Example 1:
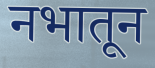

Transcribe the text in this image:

नभातून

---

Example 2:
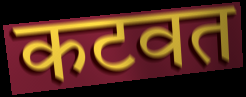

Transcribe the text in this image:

कटवत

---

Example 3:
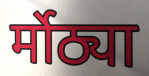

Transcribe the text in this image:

र्मोठ्या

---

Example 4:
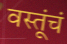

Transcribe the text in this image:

वस्तूंचं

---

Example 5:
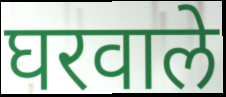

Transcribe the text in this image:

घरवाले